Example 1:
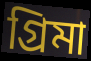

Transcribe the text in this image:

গ্রিমা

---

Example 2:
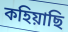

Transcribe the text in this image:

কহিয়াছি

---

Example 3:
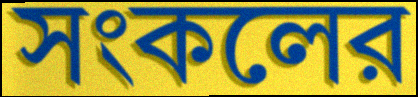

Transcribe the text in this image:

সংকলের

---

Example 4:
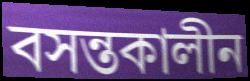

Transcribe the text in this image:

বসন্তকালীন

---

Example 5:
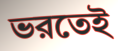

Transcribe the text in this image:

ভরতেই